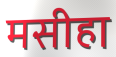
मसीहा